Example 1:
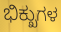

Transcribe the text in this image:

ಭಿಕ್ಖುಗಳ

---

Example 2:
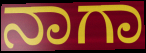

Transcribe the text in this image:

ನಾಗಾ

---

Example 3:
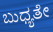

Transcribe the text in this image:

ಬುಧ್ಯತೇ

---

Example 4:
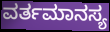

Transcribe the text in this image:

ವರ್ತಮಾನಸ್ಯ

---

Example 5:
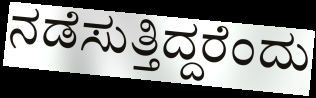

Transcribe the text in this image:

ನಡೆಸುತ್ತಿದ್ದರೆಂದು